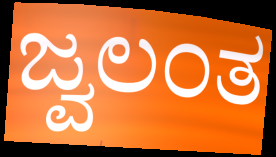
ಜ್ವಲಂತ